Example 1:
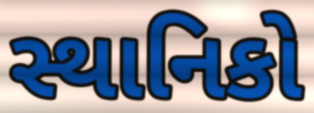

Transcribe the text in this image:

સ્થાનિકો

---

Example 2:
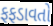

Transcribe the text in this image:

ફફડાવતો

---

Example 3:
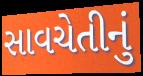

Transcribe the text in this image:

સાવચેતીનું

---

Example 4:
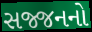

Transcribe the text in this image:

સજ્જનનો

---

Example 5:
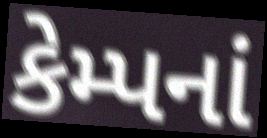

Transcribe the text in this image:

કેમ્પનાં